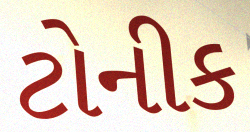
ટોનીક